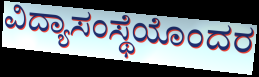
ವಿದ್ಯಾಸಂಸ್ಥೆಯೊಂದರ